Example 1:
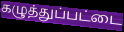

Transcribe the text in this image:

கழுத்துப்பட்டை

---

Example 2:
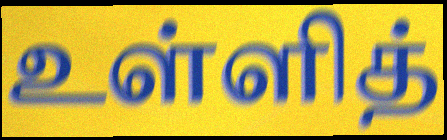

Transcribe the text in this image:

உள்ளித்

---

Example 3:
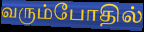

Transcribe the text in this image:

வரும்போதில்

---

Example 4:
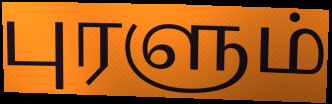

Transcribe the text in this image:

புரளும்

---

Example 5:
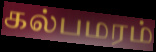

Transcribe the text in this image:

கல்பமரம்